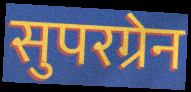
सुपरग्रेन